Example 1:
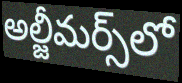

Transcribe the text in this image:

అల్జీమర్స్‌లో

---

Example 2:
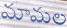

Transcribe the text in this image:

మామల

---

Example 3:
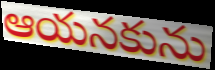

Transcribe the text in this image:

ఆయనకును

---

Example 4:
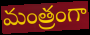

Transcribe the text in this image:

మంత్రంగా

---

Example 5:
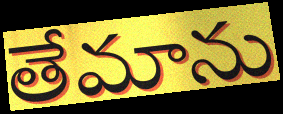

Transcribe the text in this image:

తేమాను